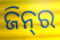
ଜିନ୍‍ର